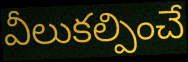
వీలుకల్పించే